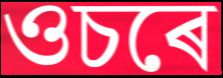
ওচৰে